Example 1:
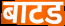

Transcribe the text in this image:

बाटड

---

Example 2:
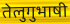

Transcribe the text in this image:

तेलुगुभाषी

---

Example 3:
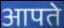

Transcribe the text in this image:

आपते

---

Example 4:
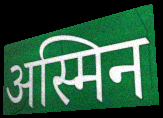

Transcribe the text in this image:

अस्मिन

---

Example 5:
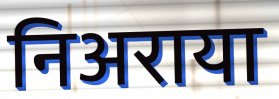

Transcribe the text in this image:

निअराया